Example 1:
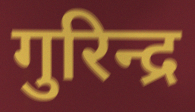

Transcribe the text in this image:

गुरिन्द्र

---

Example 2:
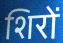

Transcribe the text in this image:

शिरों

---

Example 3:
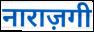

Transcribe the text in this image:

नाराज़गी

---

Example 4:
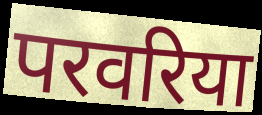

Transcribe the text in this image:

परवरिया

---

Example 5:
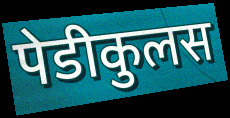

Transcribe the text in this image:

पेडीकुलस